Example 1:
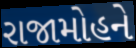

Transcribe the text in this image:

રાજામોહને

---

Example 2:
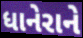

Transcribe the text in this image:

ધાનેરાને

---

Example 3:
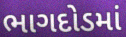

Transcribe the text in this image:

ભાગદોડમાં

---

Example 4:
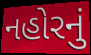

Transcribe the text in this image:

નહોરનું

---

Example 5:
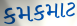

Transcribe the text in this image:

કમકમાટ